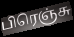
பிரெஞ்சு